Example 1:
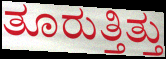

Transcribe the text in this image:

ತೂರುತ್ತಿತ್ತು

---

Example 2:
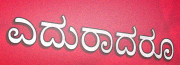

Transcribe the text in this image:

ಎದುರಾದರೂ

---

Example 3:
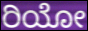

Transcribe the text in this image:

ರಿಯೋ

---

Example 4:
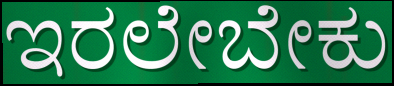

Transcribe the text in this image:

ಇರಲೇಬೇಕು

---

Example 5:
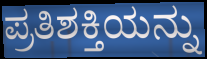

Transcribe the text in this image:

ಪ್ರತಿಶಕ್ತಿಯನ್ನು